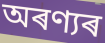
অৰণ্যৰ